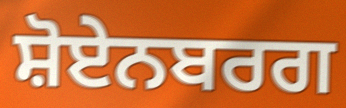
ਸ਼ੋਏਨਬਰਗ